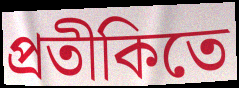
প্রতীকিতে